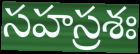
సహస్రశః